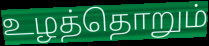
உழத்தொறும்